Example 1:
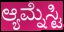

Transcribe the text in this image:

ಆ್ಯಮ್ನೆಸ್ಟಿ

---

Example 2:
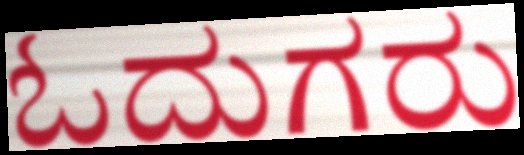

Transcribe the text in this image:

ಓದುಗರು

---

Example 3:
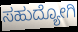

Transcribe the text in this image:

ಸಹುದ್ಯೋಗಿ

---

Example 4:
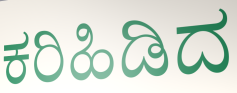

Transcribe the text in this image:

ಕರಿಹಿಡಿದ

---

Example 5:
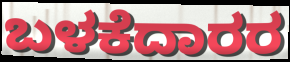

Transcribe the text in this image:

ಬಳಕೆದಾರರ